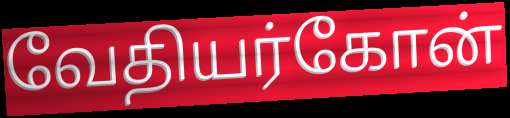
வேதியர்கோன்